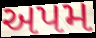
અપમ